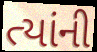
ત્યાંની